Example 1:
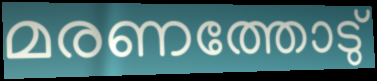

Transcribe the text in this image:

മരണത്തോടു്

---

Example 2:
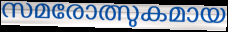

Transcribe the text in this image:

സമരോത്സുകമായ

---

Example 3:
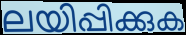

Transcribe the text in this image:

ലയിപ്പിക്കുക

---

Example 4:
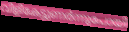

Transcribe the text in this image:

വിളികേട്ടുണർന്നുപോയി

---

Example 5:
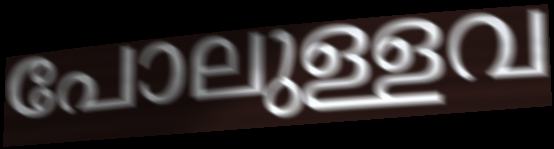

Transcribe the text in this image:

പോലുള്ളവ